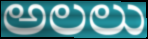
అలలు